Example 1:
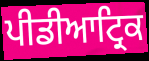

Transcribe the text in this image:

ਪੀਡੀਆਟ੍ਰਿਕ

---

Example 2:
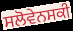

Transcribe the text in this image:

ਸਲੋਵੇਨਸਕੀ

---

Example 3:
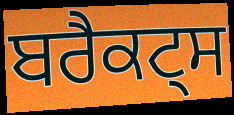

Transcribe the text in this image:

ਬਰੈਕਟ੍ਸ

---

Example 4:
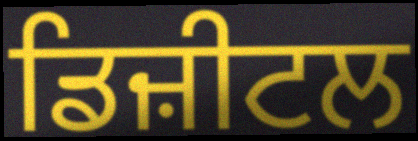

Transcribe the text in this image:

ਡਿਜ਼ੀਟਲ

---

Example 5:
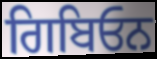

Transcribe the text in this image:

ਗਿਬਿਓਨ